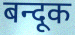
बन्दूक